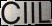
CIIL